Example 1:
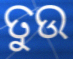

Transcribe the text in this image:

ତୁଉ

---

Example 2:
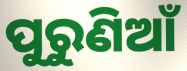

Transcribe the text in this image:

ପୁରୁଣିଆଁ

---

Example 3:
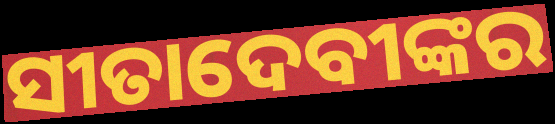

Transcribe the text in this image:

ସୀତାଦେବୀଙ୍କର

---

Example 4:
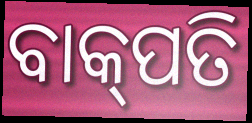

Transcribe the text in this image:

ବାକ୍‌ପତି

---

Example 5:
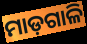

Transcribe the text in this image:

ମାଡ଼ଗାଳି